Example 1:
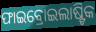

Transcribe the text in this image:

ଫାଇବ୍ରୋଇଲାଷ୍ଟିକ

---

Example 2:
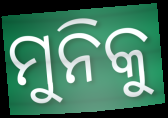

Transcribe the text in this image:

ମୁନିକୁ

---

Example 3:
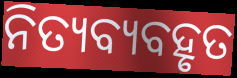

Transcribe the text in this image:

ନିତ୍ୟବ୍ୟବହୃତ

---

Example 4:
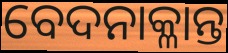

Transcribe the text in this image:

ବେଦନାକ୍ଳାନ୍ତ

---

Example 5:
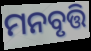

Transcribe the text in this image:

ମନବୃତ୍ତି